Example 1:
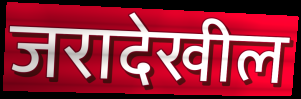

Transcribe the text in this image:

जरादेखील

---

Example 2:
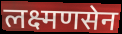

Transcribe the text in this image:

लक्ष्मणसेन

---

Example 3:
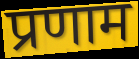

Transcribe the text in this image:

प्रणाम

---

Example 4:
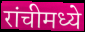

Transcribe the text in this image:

रांचीमध्ये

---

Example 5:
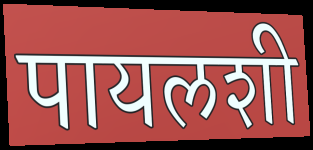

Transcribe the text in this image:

पायलशी